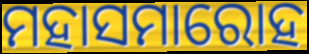
ମହାସମାରୋହ